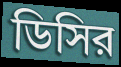
ডিসির